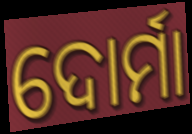
ଦୋର୍ମା